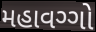
મહાવગ્ગો